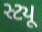
સ્ટ્યૂ